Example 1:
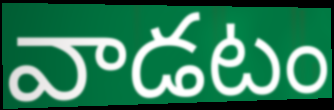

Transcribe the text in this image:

వాడటం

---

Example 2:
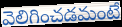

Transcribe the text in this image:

వెలిగించడమంటే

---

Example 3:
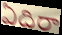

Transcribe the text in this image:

ఏదిరా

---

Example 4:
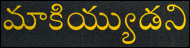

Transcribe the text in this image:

మాకియ్యుడని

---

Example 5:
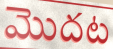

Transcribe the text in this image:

మొదట